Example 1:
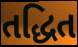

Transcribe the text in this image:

તદ્ધિત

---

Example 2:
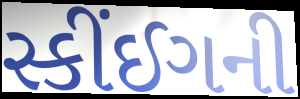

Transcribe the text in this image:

સ્કીંઈગની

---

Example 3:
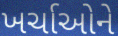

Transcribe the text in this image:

ખર્ચાઓને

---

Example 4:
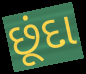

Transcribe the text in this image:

છૂંદા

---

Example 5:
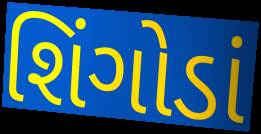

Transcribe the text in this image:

શિંગોડાં